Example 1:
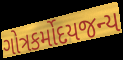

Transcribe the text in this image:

ગોત્રકર્મોદયજન્ય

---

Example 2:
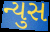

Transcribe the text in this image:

ન્યુસ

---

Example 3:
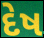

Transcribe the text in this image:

દેષ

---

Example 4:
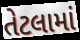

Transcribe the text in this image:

તેટલામાં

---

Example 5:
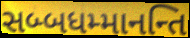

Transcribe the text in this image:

સબ્બધમ્માનન્તિ